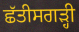
ਛੱਤੀਸਗੜ੍ਹੀ